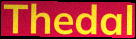
Thedal